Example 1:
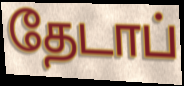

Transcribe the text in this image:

தேடாப்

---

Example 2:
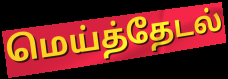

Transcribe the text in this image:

மெய்த்தேடல்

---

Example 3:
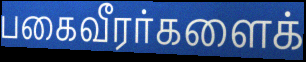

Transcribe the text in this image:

பகைவீரர்களைக்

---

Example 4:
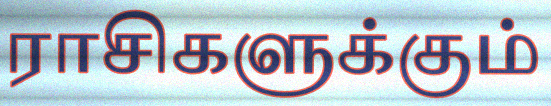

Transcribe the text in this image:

ராசிகளுக்கும்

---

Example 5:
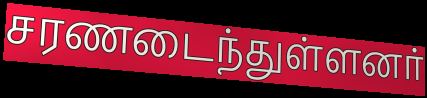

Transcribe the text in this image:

சரணடைந்துள்ளனர்